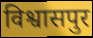
विश्वासपुर